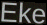
Eke